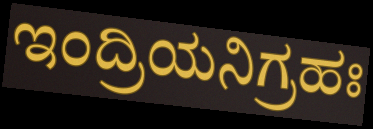
ಇಂದ್ರಿಯನಿಗ್ರಹಃ